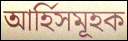
আৰ্হিসমূহক